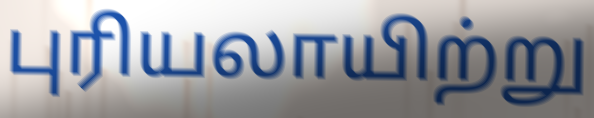
புரியலாயிற்று